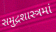
સમુદ્રશાસ્ત્રમાં